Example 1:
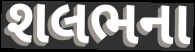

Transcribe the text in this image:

શલભના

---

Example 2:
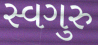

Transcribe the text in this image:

સ્વગુરુ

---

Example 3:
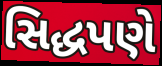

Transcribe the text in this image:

સિદ્ધપણે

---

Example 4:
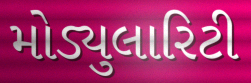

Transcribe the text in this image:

મોડ્યુલારિટી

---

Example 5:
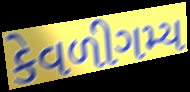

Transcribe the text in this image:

કેવળીગમ્ય